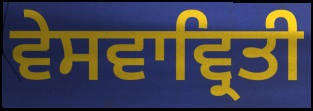
ਵੇਸਵਾਵ੍ਰਿਤੀ